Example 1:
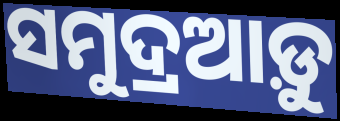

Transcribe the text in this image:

ସମୁଦ୍ରଆଡ଼ୁ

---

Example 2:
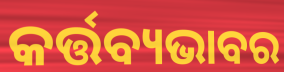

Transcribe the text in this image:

କର୍ତ୍ତବ୍ୟଭାବର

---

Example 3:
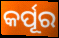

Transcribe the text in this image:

କର୍ପୂର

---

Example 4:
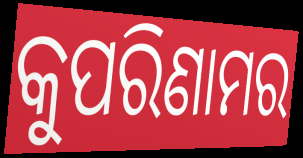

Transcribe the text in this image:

କୁପରିଣାମର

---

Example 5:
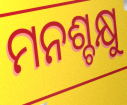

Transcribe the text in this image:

ମନଶ୍ଚକ୍ଷୁ